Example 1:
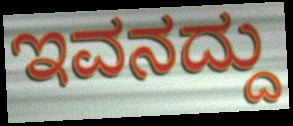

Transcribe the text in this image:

ಇವನದ್ದು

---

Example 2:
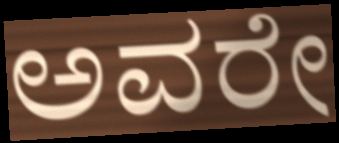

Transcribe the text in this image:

ಅವರೇ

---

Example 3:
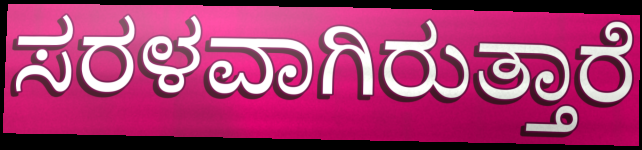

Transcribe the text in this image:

ಸರಳವಾಗಿರುತ್ತಾರೆ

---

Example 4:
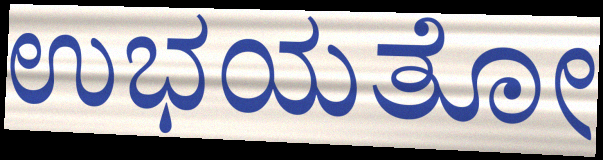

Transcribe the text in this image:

ಉಭಯತೋ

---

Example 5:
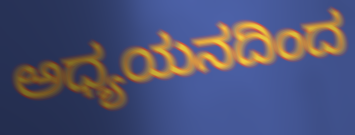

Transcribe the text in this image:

ಅಧ್ಯಯನದಿಂದ